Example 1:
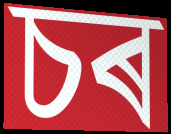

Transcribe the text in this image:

চৰ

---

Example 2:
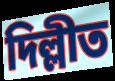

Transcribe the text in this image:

দিল্লীত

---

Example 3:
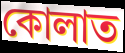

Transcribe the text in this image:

কোলাত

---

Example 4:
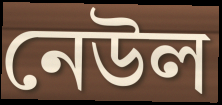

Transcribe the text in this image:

নেউল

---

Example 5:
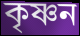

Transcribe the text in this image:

কৃষ্ণন